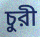
চুরী